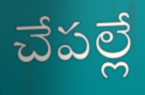
చేపల్లే